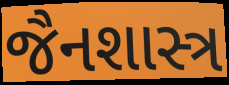
જૈનશાસ્ત્ર